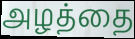
அழத்தை